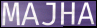
MAJHA